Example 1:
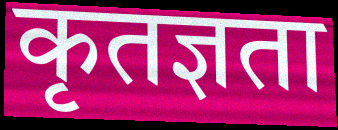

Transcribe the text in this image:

कृतज्ञता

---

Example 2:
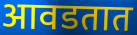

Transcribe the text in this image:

आवडतात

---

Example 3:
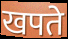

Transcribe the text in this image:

खपते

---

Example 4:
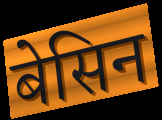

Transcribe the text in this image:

बेसिन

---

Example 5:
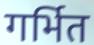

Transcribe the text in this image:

गर्भित